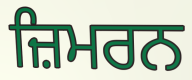
ਜ਼ਿਮਰਨ